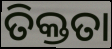
ତିକ୍ତତା